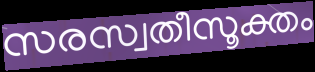
സരസ്വതീസൂക്തം